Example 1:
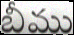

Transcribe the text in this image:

బీము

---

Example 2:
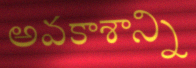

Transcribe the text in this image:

అవకాశాన్ని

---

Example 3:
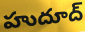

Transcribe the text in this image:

హుదూద్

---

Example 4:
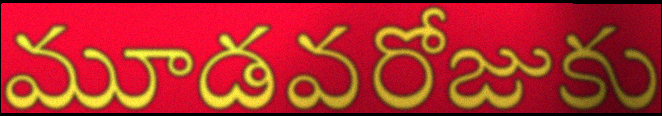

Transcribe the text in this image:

మూడవరోజుకు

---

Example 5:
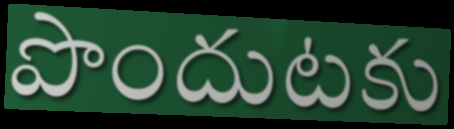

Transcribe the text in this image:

పొందుటకు